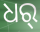
ଧର୍